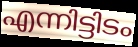
എന്നിട്ടിടം